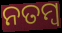
ନତମ୍ବ